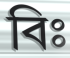
বিঃ